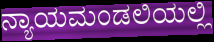
ನ್ಯಾಯಮಂಡಲಿಯಲ್ಲಿ